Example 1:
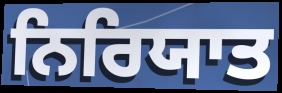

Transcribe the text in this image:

ਨਿਰਿਯਾਤ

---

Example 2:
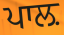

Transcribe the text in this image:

ਪਾਲ਼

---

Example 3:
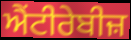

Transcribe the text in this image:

ਐਂਟੀਰੇਬੀਜ਼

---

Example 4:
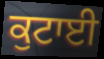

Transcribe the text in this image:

ਕੁਟਾਈ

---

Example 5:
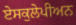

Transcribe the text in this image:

ਏਸਕੁਲੇਪੀਅਨ